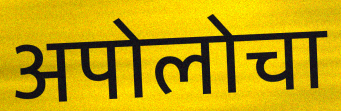
अपोलोचा